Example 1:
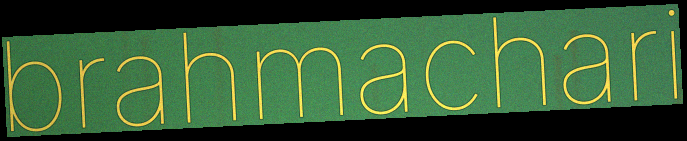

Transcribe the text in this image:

brahmachari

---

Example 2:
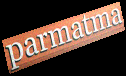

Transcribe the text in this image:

parmatma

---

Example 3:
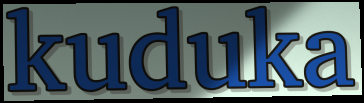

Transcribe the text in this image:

kuduka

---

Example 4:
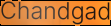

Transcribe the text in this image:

Chandgad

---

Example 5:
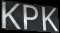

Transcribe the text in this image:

KPK